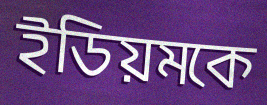
ইডিয়মকে